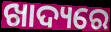
ଖାଦ୍ୟରେ